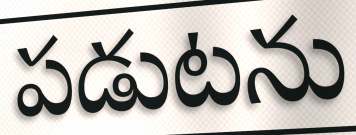
పడుటను